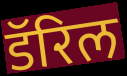
डॅरिल